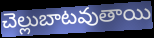
చెల్లుబాటవుతాయి